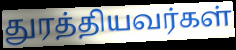
துரத்தியவர்கள்